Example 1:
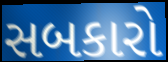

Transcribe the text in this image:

સબકારો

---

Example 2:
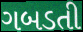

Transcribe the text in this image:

ગબડતી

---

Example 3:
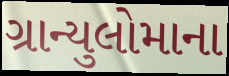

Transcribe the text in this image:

ગ્રાન્યુલોમાના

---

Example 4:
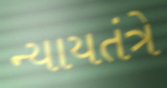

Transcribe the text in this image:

ન્યાયતંત્રે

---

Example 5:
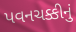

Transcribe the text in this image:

પવનચક્કીનું